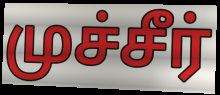
முச்சீர்